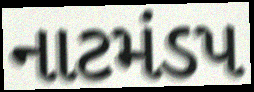
નાટમંડપ